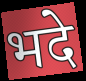
भदे